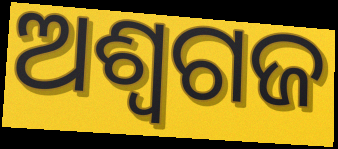
ଅଶ୍ୱଗଜ